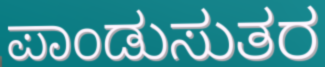
ಪಾಂಡುಸುತರ